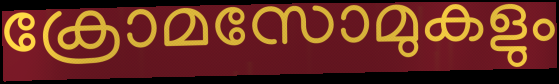
ക്രോമസോമുകളും